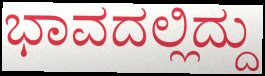
ಭಾವದಲ್ಲಿದ್ದು